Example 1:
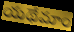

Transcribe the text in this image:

యథేమాం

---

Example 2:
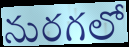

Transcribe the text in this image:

నురగలో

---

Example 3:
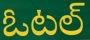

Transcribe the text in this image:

ఓటల్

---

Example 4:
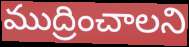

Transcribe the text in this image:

ముద్రించాలని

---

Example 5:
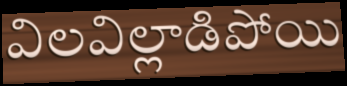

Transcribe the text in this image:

విలవిల్లాడిపోయి